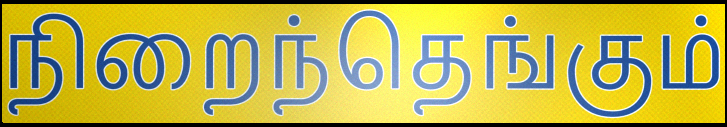
நிறைந்தெங்கும்